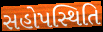
સહોપસ્થિતિ